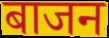
बाजन